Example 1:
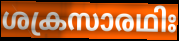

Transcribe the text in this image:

ശക്രസാരഥിഃ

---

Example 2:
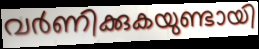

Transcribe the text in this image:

വർണിക്കുകയുണ്ടായി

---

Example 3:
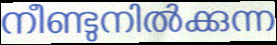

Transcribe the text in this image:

നീണ്ടുനിൽക്കുന്ന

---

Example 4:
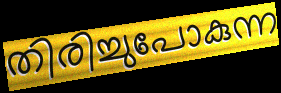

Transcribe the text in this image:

തിരിച്ചുപോകുന്ന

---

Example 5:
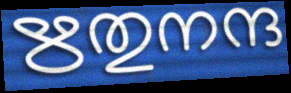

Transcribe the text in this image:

ഋതുനന്ദ